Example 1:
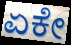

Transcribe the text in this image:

ಏಕೇ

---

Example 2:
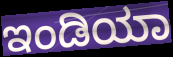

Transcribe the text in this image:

ಇಂಡಿಯಾ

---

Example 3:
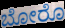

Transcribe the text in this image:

ಬೋರೊ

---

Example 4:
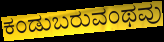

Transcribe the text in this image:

ಕಂಡುಬರುವಂಥವು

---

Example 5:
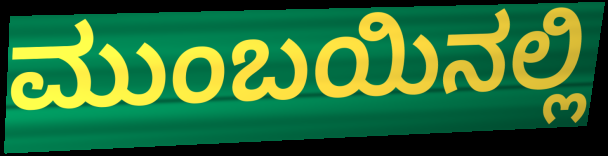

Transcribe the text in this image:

ಮುಂಬಯಿನಲ್ಲಿ